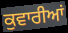
ਕੁਵਾਰੀਆਂ